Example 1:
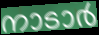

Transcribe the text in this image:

നാടാർ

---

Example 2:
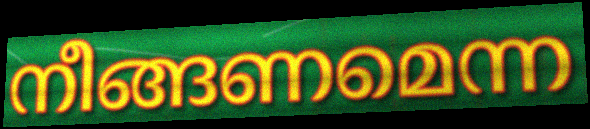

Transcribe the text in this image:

നീങ്ങണമെന്ന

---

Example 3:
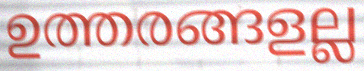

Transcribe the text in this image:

ഉത്തരങ്ങളല്ല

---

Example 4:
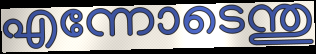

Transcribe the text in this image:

എന്നോടെന്തു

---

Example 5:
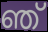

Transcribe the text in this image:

ഞ്